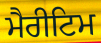
ਮੈਰੀਟਿਮ